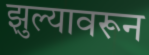
झुल्यावरून